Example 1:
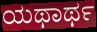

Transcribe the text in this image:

ಯಥಾರ್ಥ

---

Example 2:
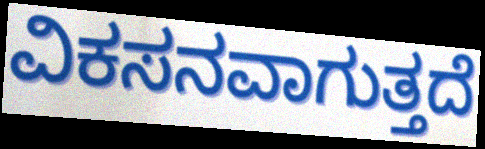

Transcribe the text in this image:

ವಿಕಸನವಾಗುತ್ತದೆ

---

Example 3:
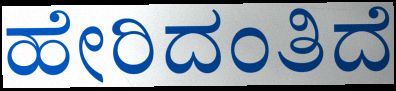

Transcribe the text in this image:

ಹೇರಿದಂತಿದೆ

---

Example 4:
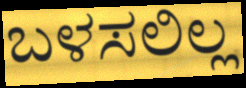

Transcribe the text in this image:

ಬಳಸಲಿಲ್ಲ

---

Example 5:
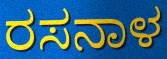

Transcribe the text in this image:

ರಸನಾಳ